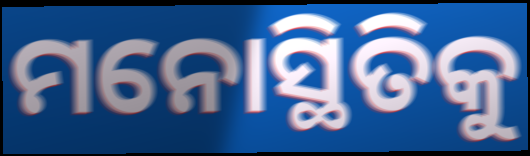
ମନୋସ୍ଥିତିକୁ